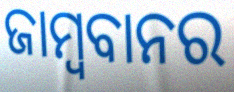
ଜାମ୍ବବାନର